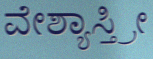
ವೇಶ್ಯಾಸ್ತ್ರೀ